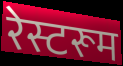
रेस्टरूम